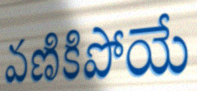
వణికిపోయే